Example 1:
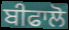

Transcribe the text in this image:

ਬੀਫਾਲੋ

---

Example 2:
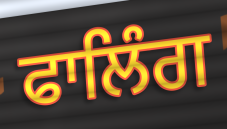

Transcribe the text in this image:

ਫਾਲਿੰਗ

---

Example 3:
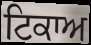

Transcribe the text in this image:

ਟਿਕਾਅ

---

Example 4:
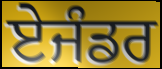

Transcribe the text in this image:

ਏਜੰਡਰ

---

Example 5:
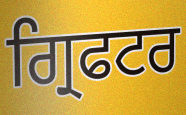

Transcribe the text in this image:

ਗ੍ਰਿਫਟਰ